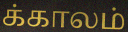
க்காலம்